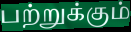
பற்றுக்கும்